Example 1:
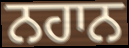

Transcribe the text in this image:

ਨਹਾਨ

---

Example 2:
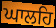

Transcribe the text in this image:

ਘਾਲਹਿ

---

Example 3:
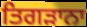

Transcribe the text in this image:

ਤਿਗੜਾਨਾ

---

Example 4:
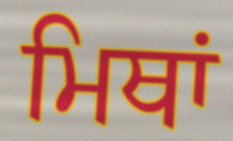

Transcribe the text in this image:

ਮਿਥਾਂ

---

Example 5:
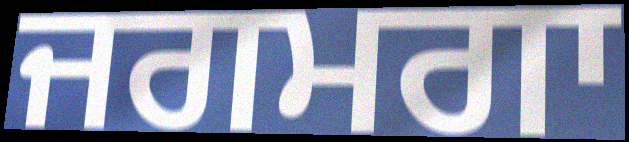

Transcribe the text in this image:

ਜਗਮਗਾ